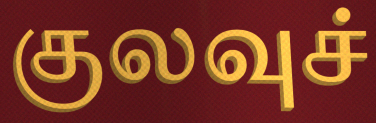
குலவுச்